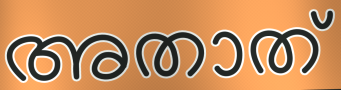
അതാത്